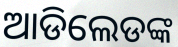
ଆଡିଲେଡଙ୍କ